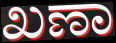
ಖಣಾ